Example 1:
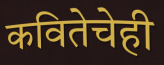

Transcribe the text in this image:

कवितेचेही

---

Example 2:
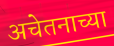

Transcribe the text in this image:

अचेतनाच्या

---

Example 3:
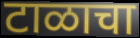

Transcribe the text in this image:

टाळाचा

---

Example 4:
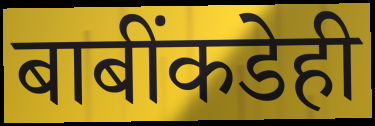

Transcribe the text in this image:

बाबींकडेही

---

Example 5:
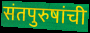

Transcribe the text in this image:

संतपुरुषांची